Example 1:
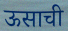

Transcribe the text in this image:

ऊसाची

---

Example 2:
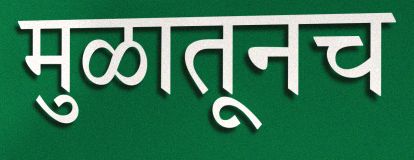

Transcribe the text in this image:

मुळातूनच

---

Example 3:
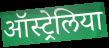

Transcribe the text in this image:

ऑस्ट्रेलिया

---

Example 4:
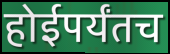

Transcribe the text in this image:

होईपर्यंतच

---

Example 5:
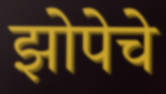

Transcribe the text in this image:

झोपेचे